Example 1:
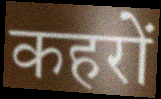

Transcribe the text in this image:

कहरों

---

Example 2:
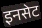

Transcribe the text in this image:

इनसेट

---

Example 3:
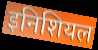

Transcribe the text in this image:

इनिशियल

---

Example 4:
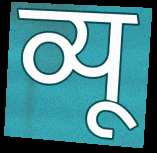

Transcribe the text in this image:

व्यू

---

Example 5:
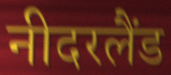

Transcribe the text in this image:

नीदरलैंड